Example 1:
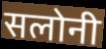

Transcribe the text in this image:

सलोनी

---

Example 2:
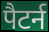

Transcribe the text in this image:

पैटर्न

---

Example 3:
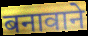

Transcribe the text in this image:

बनावाने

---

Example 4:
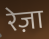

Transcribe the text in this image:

रेज़ा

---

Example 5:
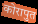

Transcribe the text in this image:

कोरापुत